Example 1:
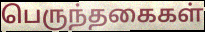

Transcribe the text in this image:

பெருந்தகைகள்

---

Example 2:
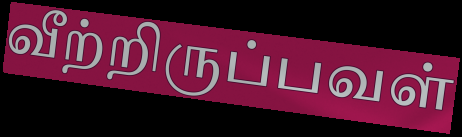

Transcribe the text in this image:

வீற்றிருப்பவள்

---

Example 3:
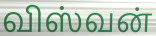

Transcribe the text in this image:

விஸ்வன்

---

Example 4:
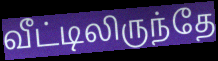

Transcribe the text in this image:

வீட்டிலிருந்தே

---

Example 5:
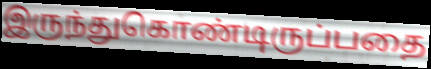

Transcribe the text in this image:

இருந்துகொண்டிருப்பதை